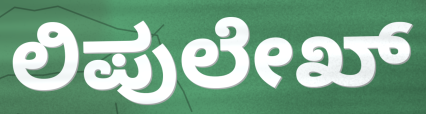
ಲಿಪುಲೇಖ್